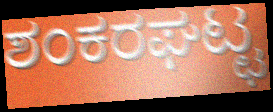
ಶಂಕರಘಟ್ಟ